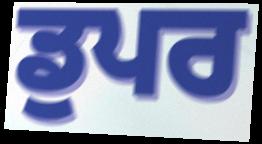
ਡੁਪਰ